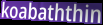
koabaththin